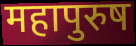
महापुरुष